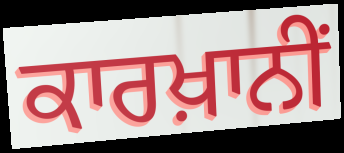
ਕਾਰਖ਼ਾਨੀਂ